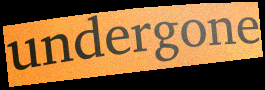
undergone